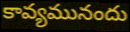
కావ్యమునందు